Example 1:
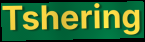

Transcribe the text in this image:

Tshering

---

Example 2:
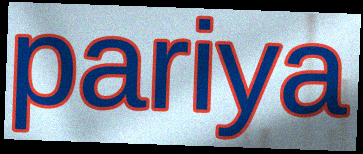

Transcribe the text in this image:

pariya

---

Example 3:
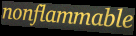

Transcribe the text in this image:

nonflammable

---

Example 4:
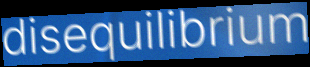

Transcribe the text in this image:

disequilibrium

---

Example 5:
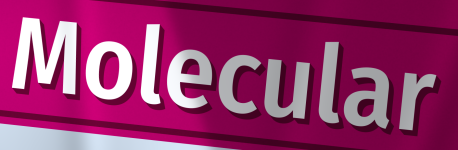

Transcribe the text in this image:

Molecular